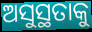
ଅସୁସ୍ଥତାକୁ